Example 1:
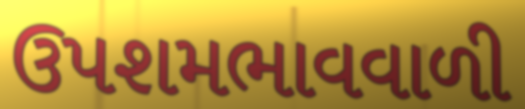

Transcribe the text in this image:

ઉપશમભાવવાળી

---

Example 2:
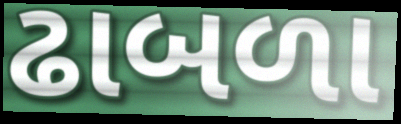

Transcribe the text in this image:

ઢાબળા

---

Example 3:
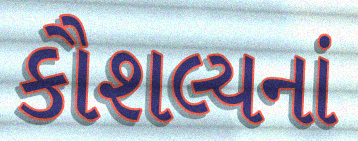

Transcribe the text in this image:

કૌશલ્યનાં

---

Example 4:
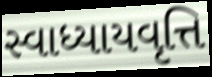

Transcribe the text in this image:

સ્વાધ્યાયવૃત્તિ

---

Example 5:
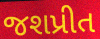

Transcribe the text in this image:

જશપ્રીત